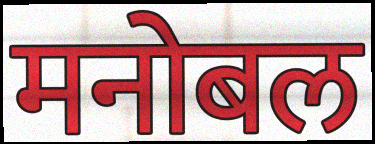
मनोबल